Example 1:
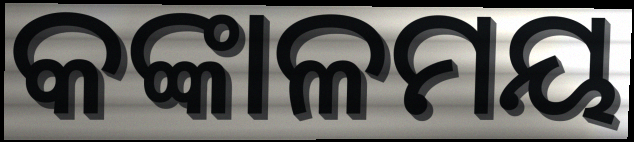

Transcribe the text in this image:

କଙ୍କାଳମୟ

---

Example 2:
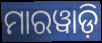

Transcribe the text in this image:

ମାରୱାଡ଼ି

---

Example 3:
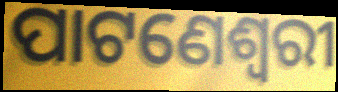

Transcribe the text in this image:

ପାଟଣେଶ୍ୱରୀ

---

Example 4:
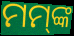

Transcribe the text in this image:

ମମ୍‌ଙ୍କ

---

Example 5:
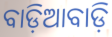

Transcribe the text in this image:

ବାଡ଼ିଆବାଡ଼ି